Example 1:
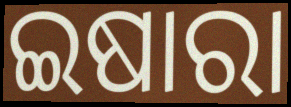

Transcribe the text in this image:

ଇଷାରା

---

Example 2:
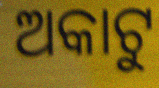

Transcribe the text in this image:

ଅକାଟୁ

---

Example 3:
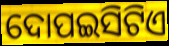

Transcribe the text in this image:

ଦୋପଇସିଟିଏ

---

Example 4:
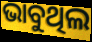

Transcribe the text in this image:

ଭାବୁଥିଲ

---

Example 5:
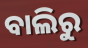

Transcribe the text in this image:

ବାଲିରୁ